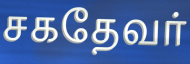
சகதேவர்